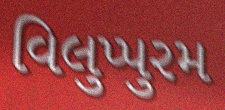
વિલુપ્પુરમ